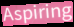
Aspiring